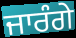
ਜਾਰੰਗੇ